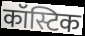
कॉस्टिक